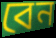
বেন